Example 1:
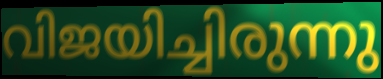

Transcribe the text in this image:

വിജയിച്ചിരുന്നു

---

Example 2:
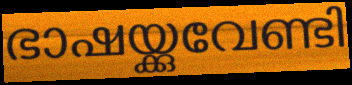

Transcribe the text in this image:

ഭാഷയ്ക്കുവേണ്ടി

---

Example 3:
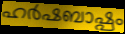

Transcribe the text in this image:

ഹർഷബാഷ്പം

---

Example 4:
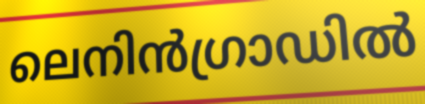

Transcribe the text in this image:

ലെനിൻഗ്രാഡിൽ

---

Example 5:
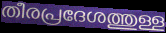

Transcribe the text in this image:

തീരപ്രദേശത്തുള്ള